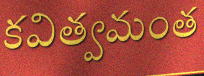
కవిత్వమంత